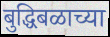
बुद्धिबळाच्या